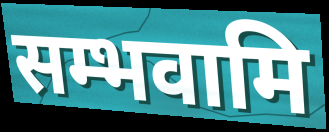
सम्भवामि